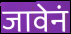
जावेनं